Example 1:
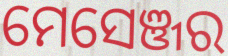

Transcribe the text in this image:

ମେସେଞ୍ଜର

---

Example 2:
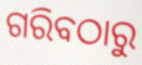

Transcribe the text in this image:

ଗରିବଠାରୁ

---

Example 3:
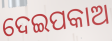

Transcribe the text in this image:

ଦେଇପକାଅ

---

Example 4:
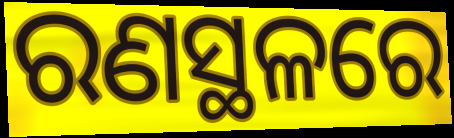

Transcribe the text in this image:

ରଣସ୍ଥଳରେ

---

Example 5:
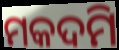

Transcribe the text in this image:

ମକଦମି